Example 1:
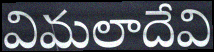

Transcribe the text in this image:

విమలాదేవి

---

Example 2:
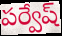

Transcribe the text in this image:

పర్వేష్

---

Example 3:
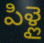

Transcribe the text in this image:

పిళ్లై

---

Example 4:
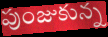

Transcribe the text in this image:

పుంజుకున్న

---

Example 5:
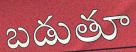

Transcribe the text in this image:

బడుతూ